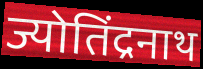
ज्योतिंद्रनाथ